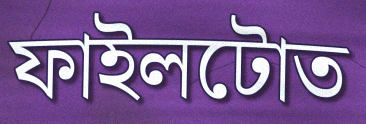
ফাইলটোত